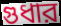
গুধার